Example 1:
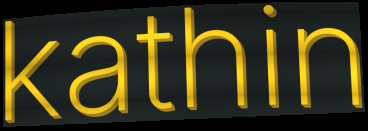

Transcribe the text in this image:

kathin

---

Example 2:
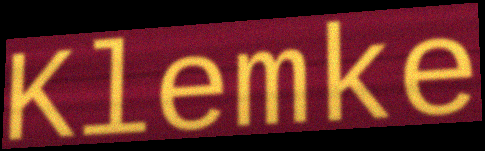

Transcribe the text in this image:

Klemke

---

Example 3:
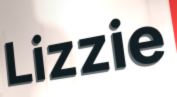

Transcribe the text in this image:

Lizzie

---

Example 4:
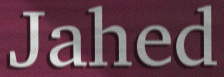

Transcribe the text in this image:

Jahed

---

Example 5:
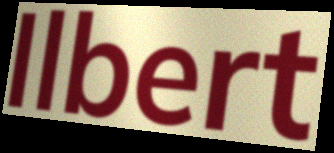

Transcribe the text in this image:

Ilbert